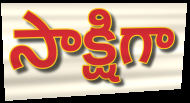
సాక్షిగా